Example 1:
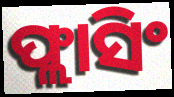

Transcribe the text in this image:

ଫ୍ଲାସିଂ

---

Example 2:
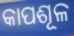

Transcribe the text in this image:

କାପଶୂଳ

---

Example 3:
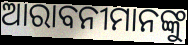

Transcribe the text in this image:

ଆରାବନୀମାନଙ୍କୁ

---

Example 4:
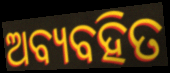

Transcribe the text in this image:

ଅବ୍ୟବହିତ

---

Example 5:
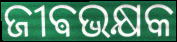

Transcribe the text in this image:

ଜୀଵଭକ୍ଷକ